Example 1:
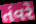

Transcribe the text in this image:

તંવરે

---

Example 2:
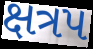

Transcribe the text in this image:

ક્ષત્રપ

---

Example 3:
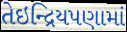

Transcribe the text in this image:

તેઇન્દ્રિયપણામાં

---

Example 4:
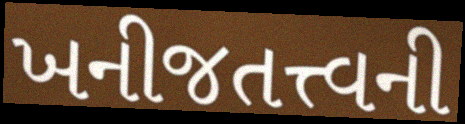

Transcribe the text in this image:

ખનીજતત્ત્વની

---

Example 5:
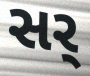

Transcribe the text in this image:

સર્